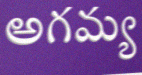
అగమ్య